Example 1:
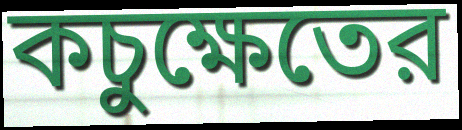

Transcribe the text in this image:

কচুক্ষেতের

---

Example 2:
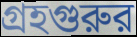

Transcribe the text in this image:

গ্রহগুরুর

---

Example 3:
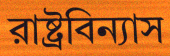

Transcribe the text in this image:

রাষ্ট্রবিন্যাস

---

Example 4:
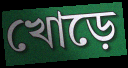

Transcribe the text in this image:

খোড়ে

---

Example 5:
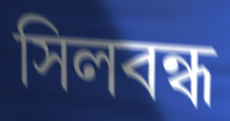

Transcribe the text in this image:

সিলবন্ধ